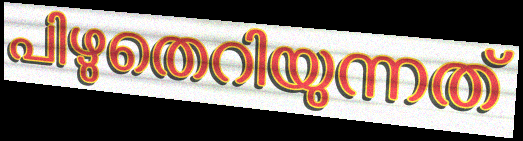
പിഴുതെറിയുന്നത്